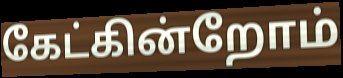
கேட்கின்றோம்